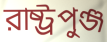
রাষ্ট্রপুঞ্জ